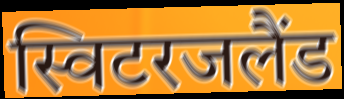
स्विटरजलैंड